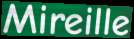
Mireille